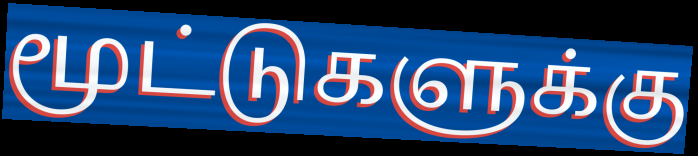
மூட்டுகளுக்கு